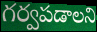
గర్వపడాలని